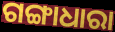
ଗଙ୍ଗାଧାରା